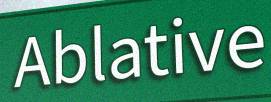
Ablative